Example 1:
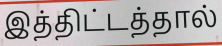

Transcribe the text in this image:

இத்திட்டத்தால்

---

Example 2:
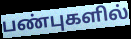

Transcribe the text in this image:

பண்புகளில்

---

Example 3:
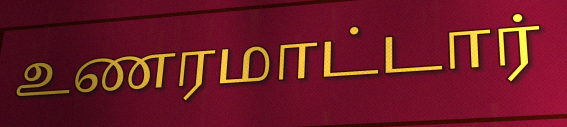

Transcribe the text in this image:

உணரமாட்டார்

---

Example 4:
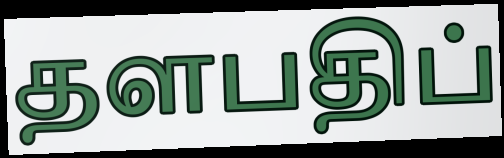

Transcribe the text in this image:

தளபதிப்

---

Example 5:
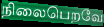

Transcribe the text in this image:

நிலைபெறவே